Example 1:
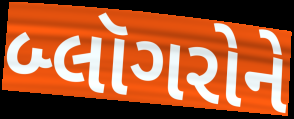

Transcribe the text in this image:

બ્લૉગરોને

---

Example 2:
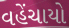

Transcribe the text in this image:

વહેંચાયો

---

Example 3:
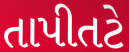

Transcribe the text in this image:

તાપીતટે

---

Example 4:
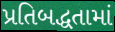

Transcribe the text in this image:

પ્રતિબદ્ધતામાં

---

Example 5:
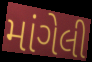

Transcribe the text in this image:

માંગેલી